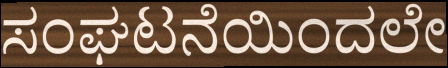
ಸಂಘಟನೆಯಿಂದಲೇ